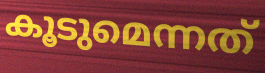
കൂടുമെന്നത്